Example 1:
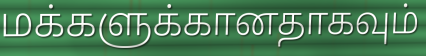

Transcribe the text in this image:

மக்களுக்கானதாகவும்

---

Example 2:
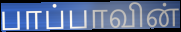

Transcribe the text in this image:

பாப்பாவின்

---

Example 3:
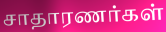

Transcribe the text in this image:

சாதாரணர்கள்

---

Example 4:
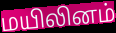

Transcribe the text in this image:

மயிலினம்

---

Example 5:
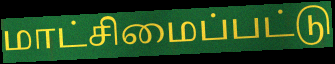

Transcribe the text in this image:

மாட்சிமைப்பட்டு